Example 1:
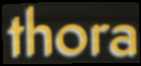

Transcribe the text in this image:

thora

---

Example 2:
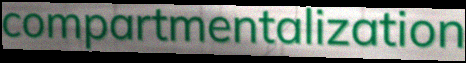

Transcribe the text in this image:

compartmentalization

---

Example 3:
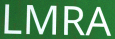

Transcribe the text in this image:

LMRA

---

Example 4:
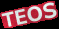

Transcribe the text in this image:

TEOS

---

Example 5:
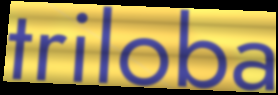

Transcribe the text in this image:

triloba